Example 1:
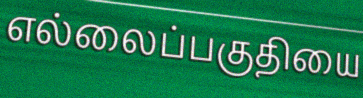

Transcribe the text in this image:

எல்லைப்பகுதியை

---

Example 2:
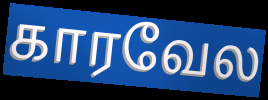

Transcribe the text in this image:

காரவேல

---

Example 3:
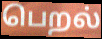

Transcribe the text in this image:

பெறல்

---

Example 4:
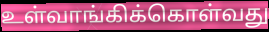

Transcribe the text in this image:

உள்வாங்கிக்கொள்வது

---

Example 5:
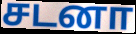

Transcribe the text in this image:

சடனா